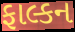
ફાલ્કન